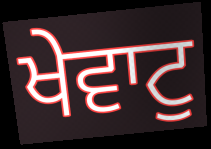
ਖੇਵਾਟੁ